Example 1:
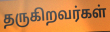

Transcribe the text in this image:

தருகிறவர்கள்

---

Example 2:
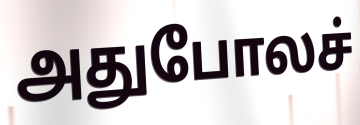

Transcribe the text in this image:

அதுபோலச்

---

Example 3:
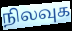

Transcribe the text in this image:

நிலவுக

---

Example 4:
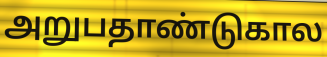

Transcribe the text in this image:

அறுபதாண்டுகால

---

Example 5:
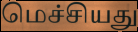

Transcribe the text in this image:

மெச்சியது